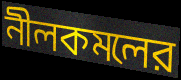
নীলকমলের